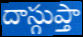
దాస్గుప్తా